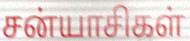
சன்யாசிகள்